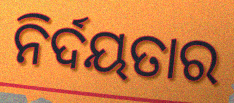
ନିର୍ଦୟତାର